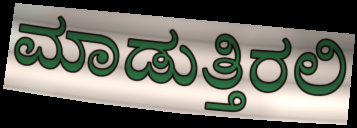
ಮಾಡುತ್ತಿರಲಿ